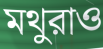
মথুরাও